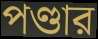
পণ্ডার